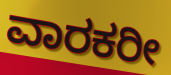
ವಾರಕರೀ